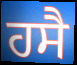
ਹਸੈ